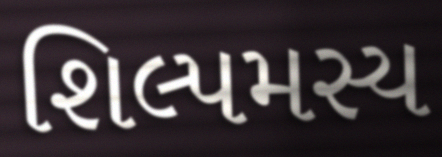
શિલ્પમસ્ય